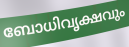
ബോധിവൃക്ഷവും